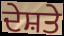
ਦੇਸ਼ਤੇ